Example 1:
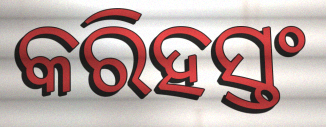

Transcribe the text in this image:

କରିହସ୍ତଂ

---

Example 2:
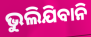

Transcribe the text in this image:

ଭୁଲିଯିବାନି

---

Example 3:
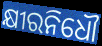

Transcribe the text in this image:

କ୍ଷୀରନିଧୌ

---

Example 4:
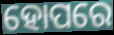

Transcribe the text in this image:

ହୋପରେ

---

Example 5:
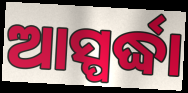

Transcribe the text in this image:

ଆସ୍ପର୍ଦ୍ଧା